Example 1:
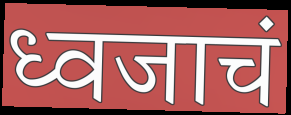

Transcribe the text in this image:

ध्वजाचं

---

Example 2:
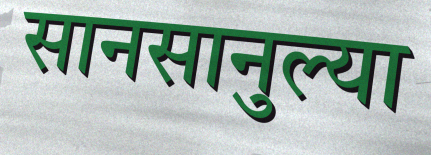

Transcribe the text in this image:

सानसानुल्या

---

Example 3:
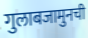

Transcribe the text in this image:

गुलाबजामुनची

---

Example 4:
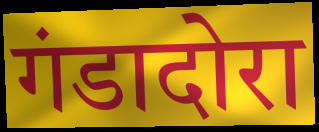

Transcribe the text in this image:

गंडादोरा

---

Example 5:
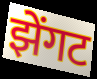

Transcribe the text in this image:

झेंगट